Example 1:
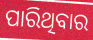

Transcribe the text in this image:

ପାରିଥିବାର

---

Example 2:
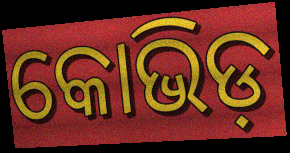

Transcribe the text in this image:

କୋଭିଡ଼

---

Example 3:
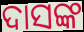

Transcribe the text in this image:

ଦାସଙ୍କ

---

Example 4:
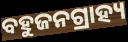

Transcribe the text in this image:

ବହୁଜନଗ୍ରାହ୍ୟ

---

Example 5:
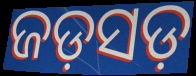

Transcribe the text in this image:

ଜଡ଼ସଡ଼